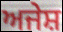
ਅਜੇਸ਼